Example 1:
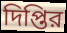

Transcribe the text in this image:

দিপ্তির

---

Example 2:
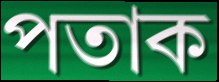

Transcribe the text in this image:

পতাক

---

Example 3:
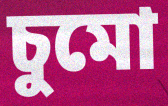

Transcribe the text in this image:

চুমো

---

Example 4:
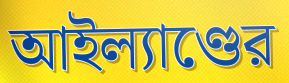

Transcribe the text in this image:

আইল্যাণ্ডের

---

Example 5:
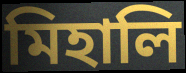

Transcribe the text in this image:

মিহালি